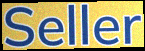
Seller